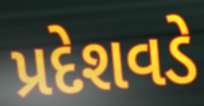
પ્રદેશવડે